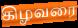
கிழவரை